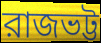
রাজভট্ট